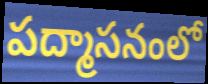
పద్మాసనంలో